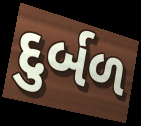
દુર્બળ